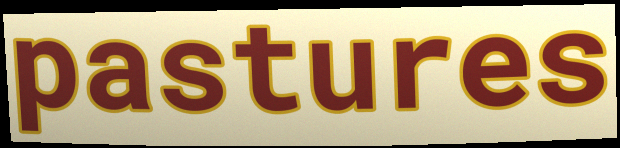
pastures